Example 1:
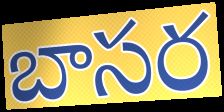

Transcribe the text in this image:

బాసర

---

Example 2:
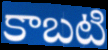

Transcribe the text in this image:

కాబటి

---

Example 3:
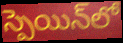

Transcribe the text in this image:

స్పెయిన్‌లో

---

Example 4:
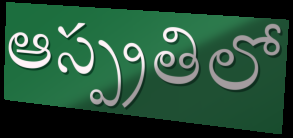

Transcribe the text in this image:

ఆస్ప్రతిలో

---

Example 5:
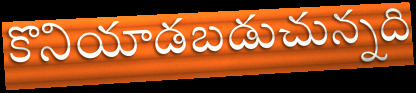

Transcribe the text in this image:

కొనియాడబడుచున్నది